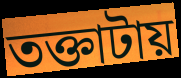
তক্তাটায়